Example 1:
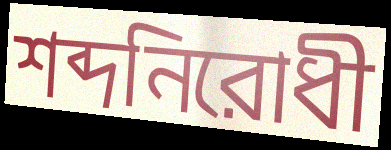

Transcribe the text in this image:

শব্দনিরোধী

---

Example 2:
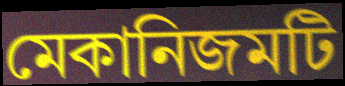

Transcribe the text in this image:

মেকানিজমটি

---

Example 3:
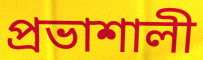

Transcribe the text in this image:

প্রভাশালী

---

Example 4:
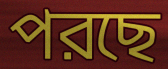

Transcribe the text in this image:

পরছে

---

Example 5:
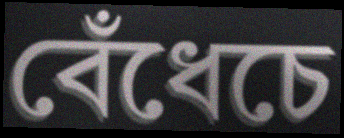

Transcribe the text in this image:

বেঁধেচে